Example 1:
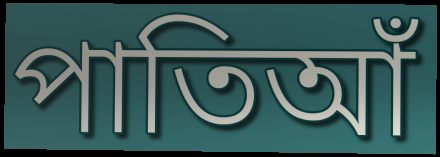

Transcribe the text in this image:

পাতিআঁ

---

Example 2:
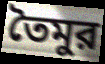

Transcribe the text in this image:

তৈমুর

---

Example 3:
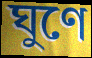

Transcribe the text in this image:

ঘুণে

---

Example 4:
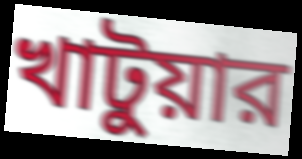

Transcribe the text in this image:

খাটুয়ার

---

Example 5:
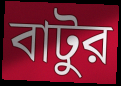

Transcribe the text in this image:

বাটুর